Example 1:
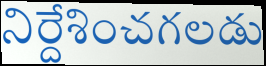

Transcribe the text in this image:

నిర్దేశించగలడు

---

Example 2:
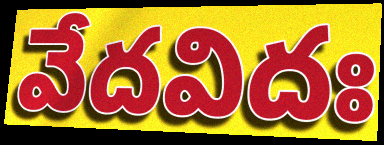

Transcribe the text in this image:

వేదవిదః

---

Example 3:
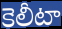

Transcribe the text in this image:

కెలీటా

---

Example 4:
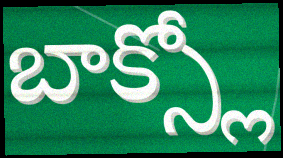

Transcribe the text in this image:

బాక్స్లో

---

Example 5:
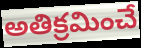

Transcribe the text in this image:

అతిక్రమించే